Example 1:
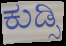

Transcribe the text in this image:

ಕುಡ್ಸಿ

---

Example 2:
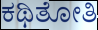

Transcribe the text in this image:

ಕಥಿತೋತಿ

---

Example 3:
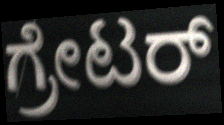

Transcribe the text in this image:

ಗ್ರೇಟರ್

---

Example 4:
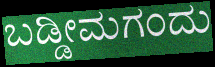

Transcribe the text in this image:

ಬಡ್ಡೀಮಗಂದು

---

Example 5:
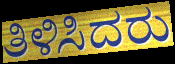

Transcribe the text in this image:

ತಿಳಿಸಿದರು